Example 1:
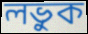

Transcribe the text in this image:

লভুক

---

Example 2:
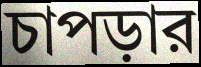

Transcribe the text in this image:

চাপড়ার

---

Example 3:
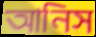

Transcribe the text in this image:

আনিস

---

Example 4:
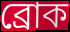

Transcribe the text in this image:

ব্রোক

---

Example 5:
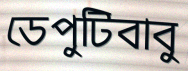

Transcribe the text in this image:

ডেপুটিবাবু